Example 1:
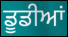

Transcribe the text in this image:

ਡੂਡੀਆਂ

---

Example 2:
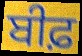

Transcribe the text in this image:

ਬੀਫ਼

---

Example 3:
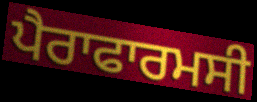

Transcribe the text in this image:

ਪੈਰਾਫਾਰਮਸੀ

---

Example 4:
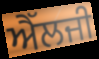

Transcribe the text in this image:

ਐੱਲਜੀ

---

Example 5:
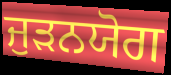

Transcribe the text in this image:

ਜੁੜਨਯੋਗ